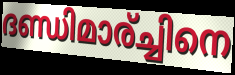
ദണ്ഡിമാര്ച്ചിനെ